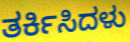
ತರ್ಕಿಸಿದಳು